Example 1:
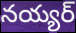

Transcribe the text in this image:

నయ్యర్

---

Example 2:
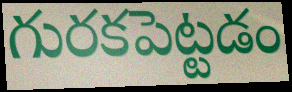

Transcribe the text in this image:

గురకపెట్టడం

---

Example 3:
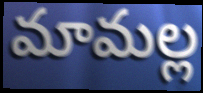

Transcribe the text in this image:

మామల్ల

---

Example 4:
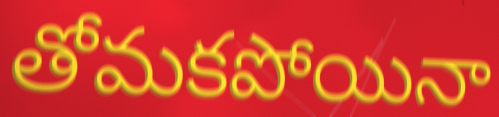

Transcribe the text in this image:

తోమకపోయినా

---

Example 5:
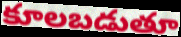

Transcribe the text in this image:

కూలబడుతూ